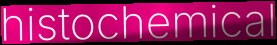
histochemical